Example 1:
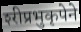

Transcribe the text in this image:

श्रीप्रभुकृपेने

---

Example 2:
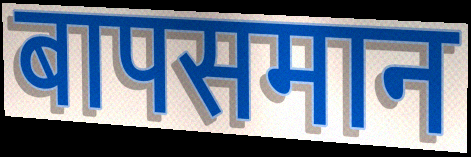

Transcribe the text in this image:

बापसमान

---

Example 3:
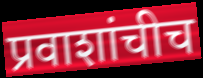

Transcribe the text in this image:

प्रवाशांचीच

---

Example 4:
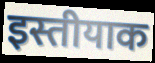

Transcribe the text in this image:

इस्तीयाक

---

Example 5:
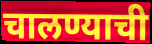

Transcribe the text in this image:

चालण्याची